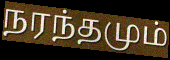
நரந்தமும்